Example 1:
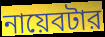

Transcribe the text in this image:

নায়েবটার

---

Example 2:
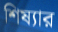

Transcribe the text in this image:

শিষ্যার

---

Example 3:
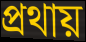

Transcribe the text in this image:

প্রথায়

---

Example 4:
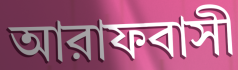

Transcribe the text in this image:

আরাফবাসী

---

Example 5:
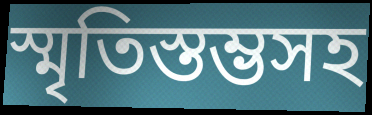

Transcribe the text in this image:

স্মৃতিস্তম্ভসহ